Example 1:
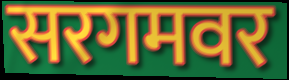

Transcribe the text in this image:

सरगमवर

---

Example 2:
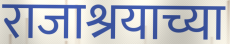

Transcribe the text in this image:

राजाश्रयाच्या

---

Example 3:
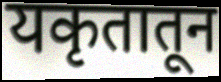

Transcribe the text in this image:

यकृतातून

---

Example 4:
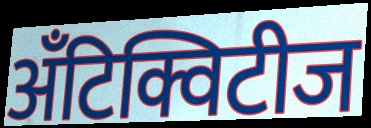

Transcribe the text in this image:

अँटिक्विटीज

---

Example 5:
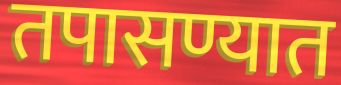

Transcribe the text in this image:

तपासण्यात